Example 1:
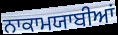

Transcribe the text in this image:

ਨਾਕਾਮਯਾਬੀਆਂ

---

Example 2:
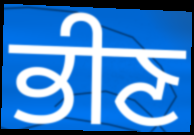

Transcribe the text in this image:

ਭੀਣ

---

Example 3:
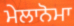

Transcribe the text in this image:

ਮੇਲਾਨੋਮਾ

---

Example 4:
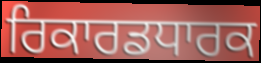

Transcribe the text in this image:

ਰਿਕਾਰਡਧਾਰਕ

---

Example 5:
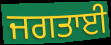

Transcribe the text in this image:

ਜਗਤਾਈ